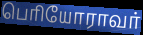
பெரியோராவர்